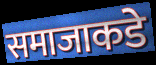
समाजाकडे